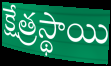
క్షేత్రస్థాయి